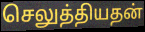
செலுத்தியதன்